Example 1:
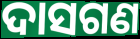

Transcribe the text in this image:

ଦାସଗଣ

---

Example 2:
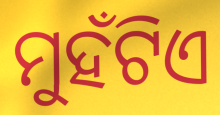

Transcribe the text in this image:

ମୁହଁଟିଏ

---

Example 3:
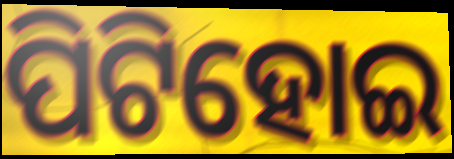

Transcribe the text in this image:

ପିଟିହୋଇ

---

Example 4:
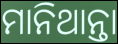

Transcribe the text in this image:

ମାନିଥାନ୍ତା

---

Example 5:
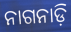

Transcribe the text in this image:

ନାଗନାଡ଼ି